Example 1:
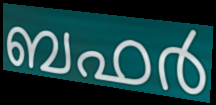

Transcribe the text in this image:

ബഫർ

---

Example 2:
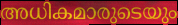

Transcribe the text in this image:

അധികമാരുടെയും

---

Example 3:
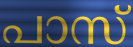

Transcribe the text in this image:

പാസ്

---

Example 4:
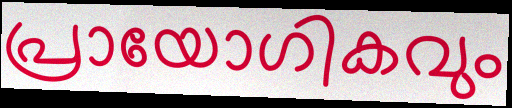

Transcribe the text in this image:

പ്രായോഗികവും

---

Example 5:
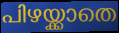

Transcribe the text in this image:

പിഴയ്ക്കാതെ